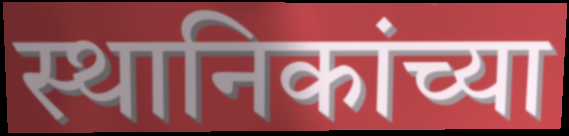
स्थानिकांच्या